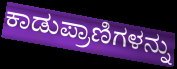
ಕಾಡುಪ್ರಾಣಿಗಳನ್ನು